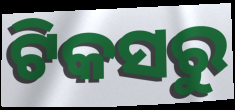
ଟିକସରୁ